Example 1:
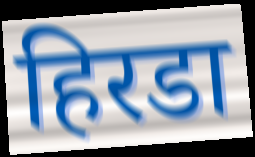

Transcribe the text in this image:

हिरडा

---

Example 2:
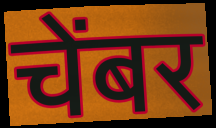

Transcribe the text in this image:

चेंबर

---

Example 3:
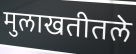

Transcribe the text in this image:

मुलाखतीतले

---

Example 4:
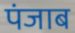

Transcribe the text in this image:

पंजाब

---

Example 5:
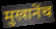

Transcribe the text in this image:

मुखानेंच